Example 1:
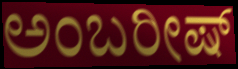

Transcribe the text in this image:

ಅಂಬರೀಷ್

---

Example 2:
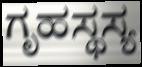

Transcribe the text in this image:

ಗೃಹಸ್ಥಸ್ಯ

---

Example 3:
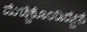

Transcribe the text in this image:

ಮೆಚ್ಚಿಕೊಂಡಿದ್ದೇನೆ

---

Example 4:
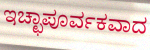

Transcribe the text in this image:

ಇಚ್ಛಾಪೂರ್ವಕವಾದ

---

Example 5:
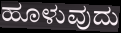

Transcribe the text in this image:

ಹೂಳುವುದು